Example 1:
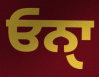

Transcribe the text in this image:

ਓਨਾੑ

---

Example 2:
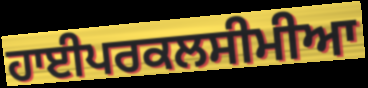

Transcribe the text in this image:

ਹਾਈਪਰਕਲਸੀਮੀਆ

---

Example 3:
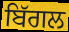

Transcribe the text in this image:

ਬਿੱਗਲ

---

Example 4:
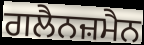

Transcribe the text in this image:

ਗਲੈਨਜ਼ਮੈਨ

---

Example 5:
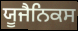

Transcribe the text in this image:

ਯੂਜੈਨਿਕਸ